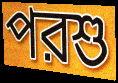
পরশু